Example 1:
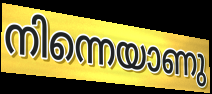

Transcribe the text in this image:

നിന്നെയാണു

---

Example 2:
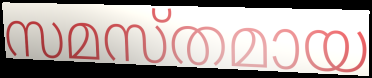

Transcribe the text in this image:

സമസ്തമായ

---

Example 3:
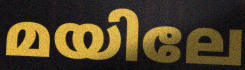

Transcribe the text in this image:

മയിലേ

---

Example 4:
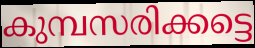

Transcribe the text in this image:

കുമ്പസരിക്കട്ടെ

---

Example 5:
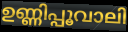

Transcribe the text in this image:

ഉണ്ണിപ്പൂവാലി